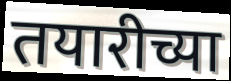
तयारीच्या